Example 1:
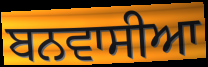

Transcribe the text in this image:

ਬਨਵਾਸੀਆ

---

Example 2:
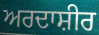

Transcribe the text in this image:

ਅਰਦਾਸ਼ੀਰ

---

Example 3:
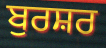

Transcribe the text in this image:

ਬੁਰਸ਼ਰ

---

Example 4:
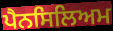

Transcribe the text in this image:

ਪੈਨਸਿਲਿਅਮ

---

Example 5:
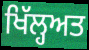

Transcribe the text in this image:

ਖਿੱਲ੍ਹਅਤ